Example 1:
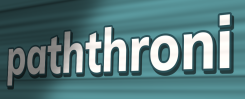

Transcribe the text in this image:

paththroni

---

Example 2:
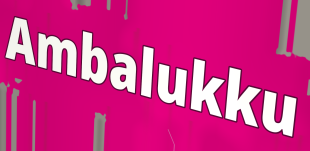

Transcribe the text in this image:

Ambalukku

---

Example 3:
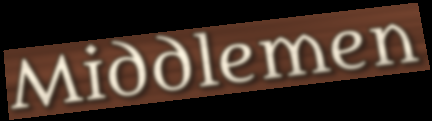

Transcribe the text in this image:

Middlemen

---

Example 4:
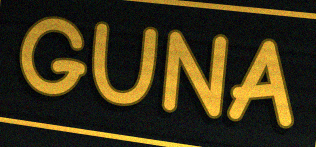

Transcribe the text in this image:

GUNA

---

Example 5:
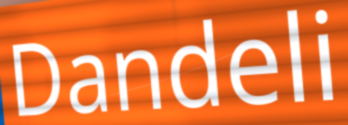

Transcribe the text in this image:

Dandeli